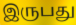
இருபது